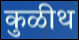
कुळीथ